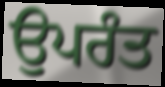
ਉਪਰੰਤ